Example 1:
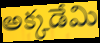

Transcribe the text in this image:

అక్కడేమి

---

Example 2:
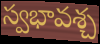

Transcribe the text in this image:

స్వభావశ్చ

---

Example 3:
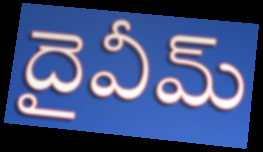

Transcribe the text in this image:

దైవీమ్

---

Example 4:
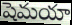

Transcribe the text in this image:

షెమయా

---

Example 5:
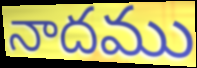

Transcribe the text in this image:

నాదము